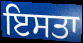
ਇਸਤਾ